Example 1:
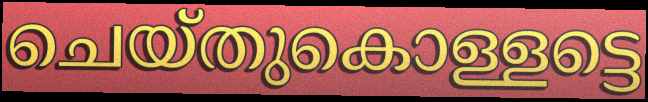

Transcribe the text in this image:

ചെയ്തുകൊള്ളട്ടെ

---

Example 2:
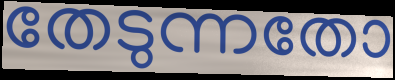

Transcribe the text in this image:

തേടുന്നതോ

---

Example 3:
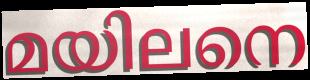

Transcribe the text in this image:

മയിലനെ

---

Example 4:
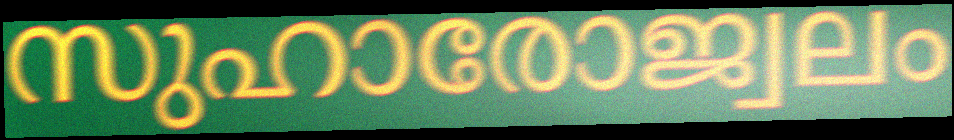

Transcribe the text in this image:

സുഹാരോജ്വലം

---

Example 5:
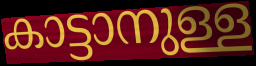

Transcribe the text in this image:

കാട്ടാനുള്ള